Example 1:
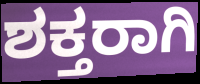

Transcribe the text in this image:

ಶಕ್ತರಾಗಿ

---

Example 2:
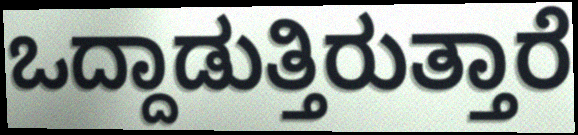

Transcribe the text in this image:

ಒದ್ದಾಡುತ್ತಿರುತ್ತಾರೆ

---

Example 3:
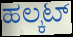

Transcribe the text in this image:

ಹಲ್ಕಟ್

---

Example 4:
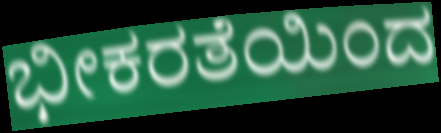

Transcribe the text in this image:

ಭೀಕರತೆಯಿಂದ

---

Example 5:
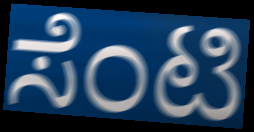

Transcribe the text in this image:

ಸೆಂಟಿ